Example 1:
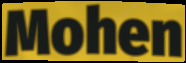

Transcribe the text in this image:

Mohen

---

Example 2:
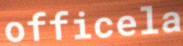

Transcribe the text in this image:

officela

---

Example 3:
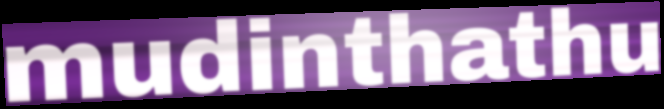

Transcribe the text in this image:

mudinthathu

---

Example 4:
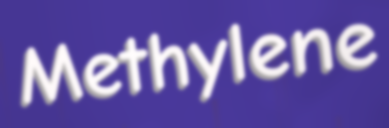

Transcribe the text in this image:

Methylene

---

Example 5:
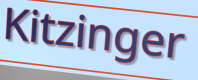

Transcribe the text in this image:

Kitzinger